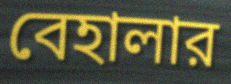
বেহালার